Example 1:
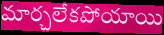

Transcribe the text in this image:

మార్చలేకపోయాయి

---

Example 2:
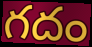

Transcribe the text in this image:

గదం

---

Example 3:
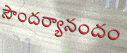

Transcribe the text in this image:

సౌందర్యానందం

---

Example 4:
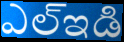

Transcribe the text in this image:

ఎల్ఇడి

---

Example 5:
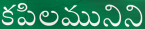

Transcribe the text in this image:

కపిలమునిని